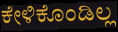
ಕೇಳಿಕೊಂಡಿಲ್ಲ